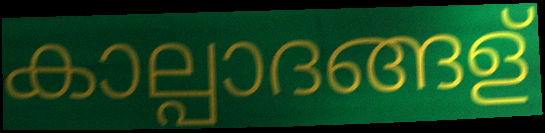
കാല്പാദങ്ങള്